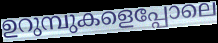
ഉറുമ്പുകളെപ്പോലെ